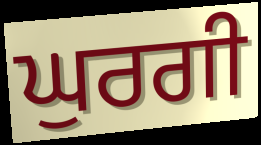
ਘੁਰਗੀ